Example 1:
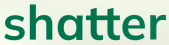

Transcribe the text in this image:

shatter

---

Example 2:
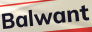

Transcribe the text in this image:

Balwant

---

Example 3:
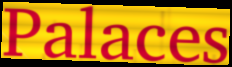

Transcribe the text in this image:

Palaces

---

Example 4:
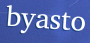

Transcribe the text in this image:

byasto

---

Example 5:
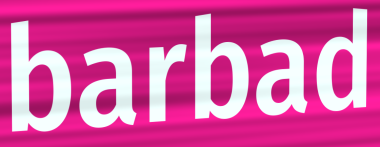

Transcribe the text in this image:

barbad